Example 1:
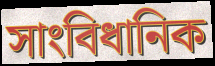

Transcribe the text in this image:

সাংবিধানিক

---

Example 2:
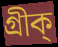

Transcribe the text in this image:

গ্ৰীক্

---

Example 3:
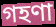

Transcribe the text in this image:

গহণা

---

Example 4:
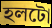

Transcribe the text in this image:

হলটো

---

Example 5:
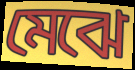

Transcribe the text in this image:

মেঝে